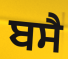
ਬਸੈ